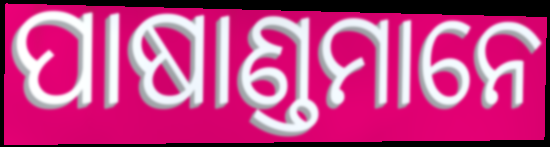
ପାଷାଣ୍ଡମାନେ